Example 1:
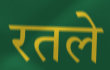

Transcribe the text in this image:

रतले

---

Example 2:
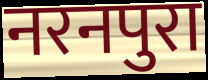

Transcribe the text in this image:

नरनपुरा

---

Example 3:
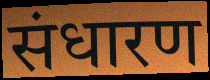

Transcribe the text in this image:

संधारण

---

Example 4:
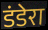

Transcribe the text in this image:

डंडेरा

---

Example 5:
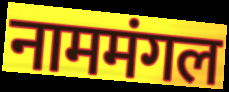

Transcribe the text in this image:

नाममंगल